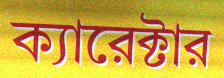
ক্যারেক্টার